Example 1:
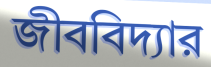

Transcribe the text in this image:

জীববিদ্যার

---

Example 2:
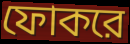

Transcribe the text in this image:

ফোকরে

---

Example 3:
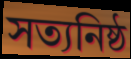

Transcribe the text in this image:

সত্যনিষ্ঠ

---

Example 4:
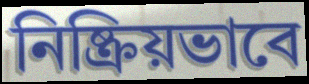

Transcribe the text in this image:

নিষ্ক্রিয়ভাবে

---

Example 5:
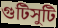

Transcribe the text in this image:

গুটিসুটি